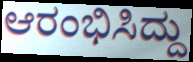
ಆರಂಭಿಸಿದ್ದು